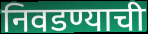
निवडण्याची